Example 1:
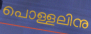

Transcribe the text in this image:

പൊള്ളലിനു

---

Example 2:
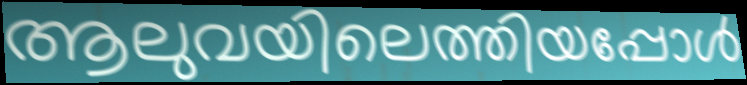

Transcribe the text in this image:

ആലുവയിലെത്തിയപ്പോൾ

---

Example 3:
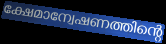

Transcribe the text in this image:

ക്ഷേമാന്വേഷണത്തിന്റെ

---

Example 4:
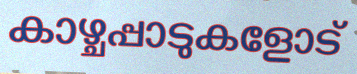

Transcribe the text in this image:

കാഴ്ചപ്പാടുകളോട്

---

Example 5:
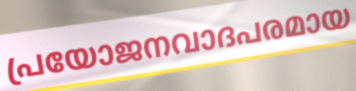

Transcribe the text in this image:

പ്രയോജനവാദപരമായ